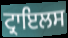
ਟ੍ਰਾਇਲਸ